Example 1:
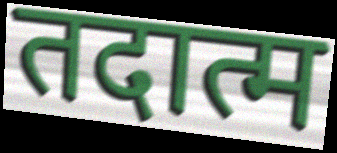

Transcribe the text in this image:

तदात्म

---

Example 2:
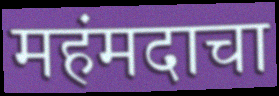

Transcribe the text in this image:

महंमदाचा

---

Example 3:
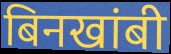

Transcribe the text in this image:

बिनखांबी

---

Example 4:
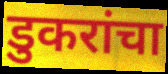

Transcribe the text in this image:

डुकरांचा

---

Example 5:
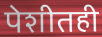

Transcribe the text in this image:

पेशीतही